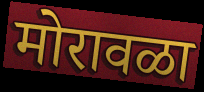
मोरावळा